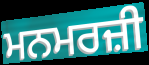
ਮਨਮਰਜ਼ੀ